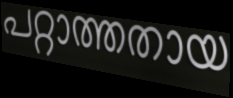
പറ്റാത്തതായ